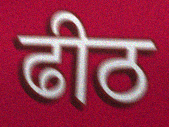
ढीठ